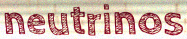
neutrinos